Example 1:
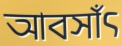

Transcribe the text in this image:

আবসাঁৎ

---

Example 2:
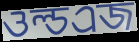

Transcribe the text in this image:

ওল্ডএজ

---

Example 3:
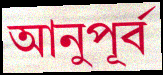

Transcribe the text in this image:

আনুপূর্ব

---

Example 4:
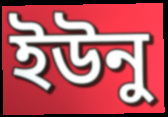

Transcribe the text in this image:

ইউনু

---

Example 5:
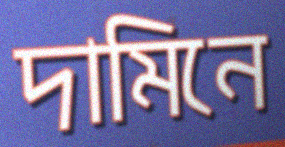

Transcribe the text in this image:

দামিনে